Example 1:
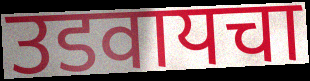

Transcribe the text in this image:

उडवायचा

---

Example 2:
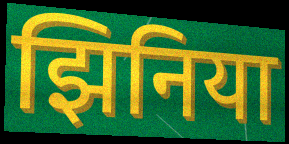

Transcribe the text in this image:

झिनिया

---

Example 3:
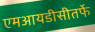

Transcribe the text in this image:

एमआयडीसीतर्फे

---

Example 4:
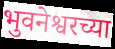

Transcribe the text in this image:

भुवनेश्वरच्या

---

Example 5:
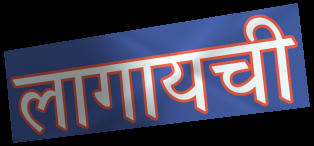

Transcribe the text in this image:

लागायची